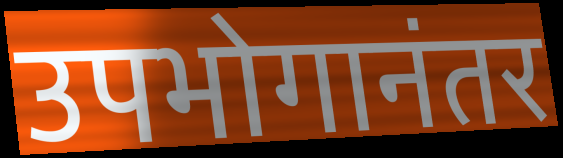
उपभोगानंतर